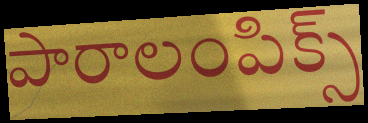
పారాలంపిక్స్